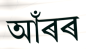
আঁৰৰ